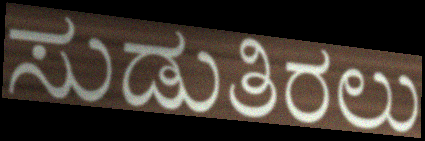
ಸುಡುತಿರಲು